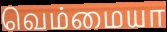
வெம்மையா